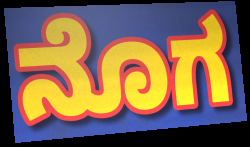
ನೊಗ